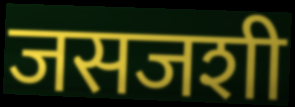
जसजशी